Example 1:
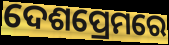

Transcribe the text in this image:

ଦେଶପ୍ରେମରେ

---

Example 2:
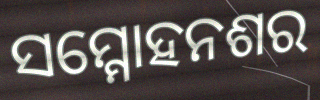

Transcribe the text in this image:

ସମ୍ମୋହନଶର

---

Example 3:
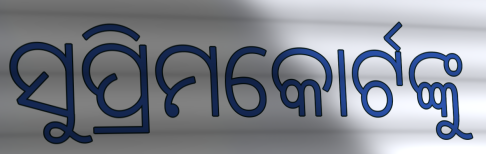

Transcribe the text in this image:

ସୁପ୍ରିମକୋର୍ଟଙ୍କୁ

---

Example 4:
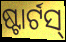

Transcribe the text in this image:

ଷ୍ଟାର୍ଟସ୍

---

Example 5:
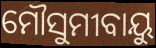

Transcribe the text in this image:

ମୌସୁମୀବାୟୁ